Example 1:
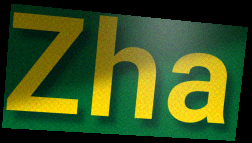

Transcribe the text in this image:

Zha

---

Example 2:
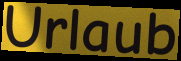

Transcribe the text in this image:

Urlaub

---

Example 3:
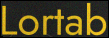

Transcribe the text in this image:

Lortab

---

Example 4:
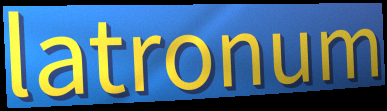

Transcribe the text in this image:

latronum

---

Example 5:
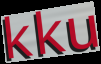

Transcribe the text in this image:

kku